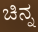
ಚಿನ್ನ